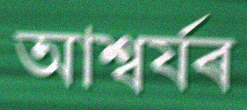
আশ্বৰ্যৰ